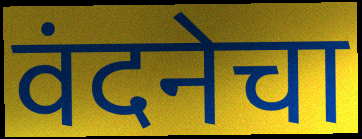
वंदनेचा